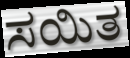
ಸಯಿತ